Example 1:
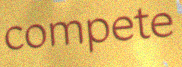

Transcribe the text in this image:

compete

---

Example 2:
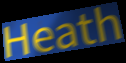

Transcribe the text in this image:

Heath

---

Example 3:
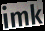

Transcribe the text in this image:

imk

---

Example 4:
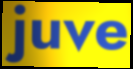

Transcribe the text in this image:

juve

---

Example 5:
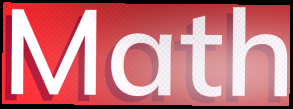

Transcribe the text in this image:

Math